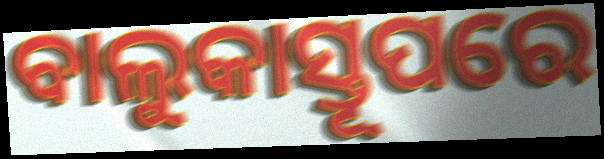
ବାଲୁକାସ୍ତୂପରେ